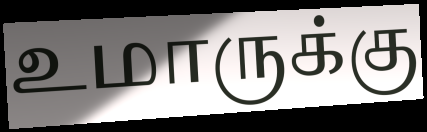
உமாருக்கு